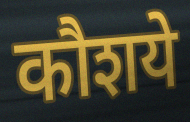
कौशये